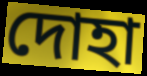
দোহা